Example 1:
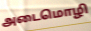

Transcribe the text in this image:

அடைமொழி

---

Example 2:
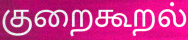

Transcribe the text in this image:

குறைகூறல்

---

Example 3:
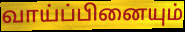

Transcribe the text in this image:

வாய்ப்பினையும்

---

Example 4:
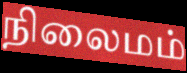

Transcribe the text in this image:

நிலைமம்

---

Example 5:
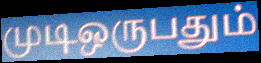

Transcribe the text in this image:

முடிஒருபதும்